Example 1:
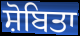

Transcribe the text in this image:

ਸ਼ੋਬਿਤਾ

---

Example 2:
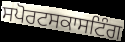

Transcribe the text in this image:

ਸਪੋਰਟਸਕਾਸਟਿੰਗ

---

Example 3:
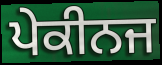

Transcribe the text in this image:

ਪੇਕੀਨਜ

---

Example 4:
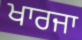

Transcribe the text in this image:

ਖਾਰਜਾ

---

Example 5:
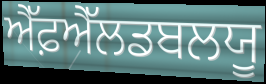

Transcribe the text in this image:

ਐੱਫ਼ਐੱਲਡਬਲਯੂ